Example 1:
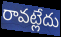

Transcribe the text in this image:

రావట్లేదు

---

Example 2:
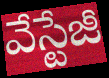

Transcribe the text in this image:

వేస్టేజీ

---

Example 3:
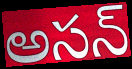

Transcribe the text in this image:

అసన్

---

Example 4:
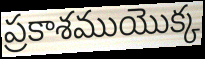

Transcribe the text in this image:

ప్రకాశముయొక్క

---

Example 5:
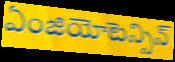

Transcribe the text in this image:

ఏంజియోటెన్సిన్